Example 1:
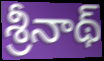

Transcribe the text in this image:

శ్రీనాథ్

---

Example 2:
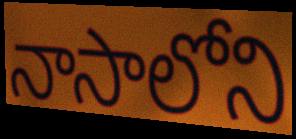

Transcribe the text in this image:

నాసాలోని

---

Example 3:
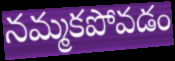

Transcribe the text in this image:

నమ్మకపోవడం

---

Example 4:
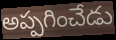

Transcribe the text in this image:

అప్పగించేడు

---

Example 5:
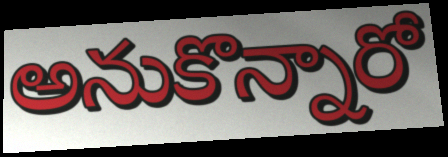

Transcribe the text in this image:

అనుకొన్నారో